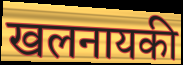
खलनायकी